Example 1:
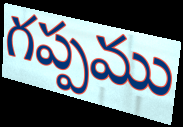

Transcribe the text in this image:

గప్పము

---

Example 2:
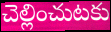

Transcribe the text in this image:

చెల్లించుటకు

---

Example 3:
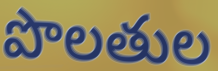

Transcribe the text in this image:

పొలతుల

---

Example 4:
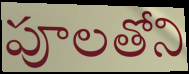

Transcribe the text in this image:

పూలతోని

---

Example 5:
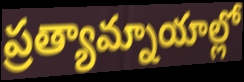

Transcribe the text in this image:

ప్రత్యామ్నాయాల్లో